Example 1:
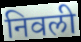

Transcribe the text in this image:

निवली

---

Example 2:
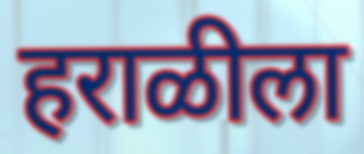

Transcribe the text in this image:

हराळीला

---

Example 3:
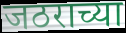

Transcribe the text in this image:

जठराच्या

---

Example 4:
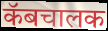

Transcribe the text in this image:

कॅबचालक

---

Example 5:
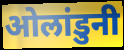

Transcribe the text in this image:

ओलांडुनी